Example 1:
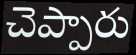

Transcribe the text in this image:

చెప్పారు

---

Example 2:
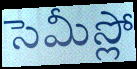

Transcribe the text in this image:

సెమీస్లో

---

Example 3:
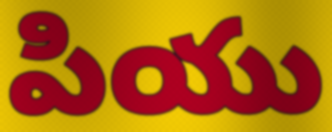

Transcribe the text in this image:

పియు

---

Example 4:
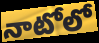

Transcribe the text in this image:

నాటోలో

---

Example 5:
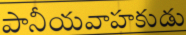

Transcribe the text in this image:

పానీయవాహకుడు